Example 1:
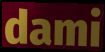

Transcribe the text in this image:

dami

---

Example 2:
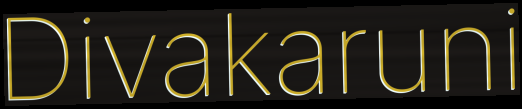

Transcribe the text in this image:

Divakaruni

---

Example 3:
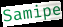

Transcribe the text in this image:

Samipe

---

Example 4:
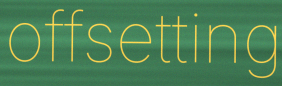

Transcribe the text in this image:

offsetting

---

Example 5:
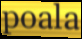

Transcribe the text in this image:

poala